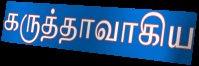
கருத்தாவாகிய